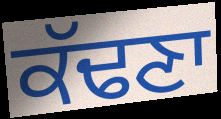
ਕੱਢਣਾ